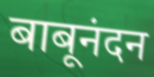
बाबूनंदन